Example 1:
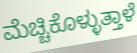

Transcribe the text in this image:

ಮೆಚ್ಚಿಕೊಳ್ಳುತ್ತಾಳೆ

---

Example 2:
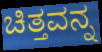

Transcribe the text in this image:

ಚಿತ್ತವನ್ನ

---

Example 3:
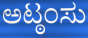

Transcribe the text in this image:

ಅಟ್ಠಂಸು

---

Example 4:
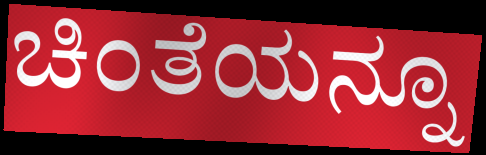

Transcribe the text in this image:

ಚಿಂತೆಯನ್ನೂ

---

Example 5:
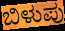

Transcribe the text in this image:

ಬಿಳುಪು